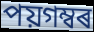
পয়গম্বৰ